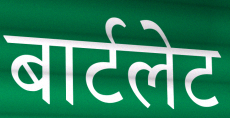
बार्टलेट